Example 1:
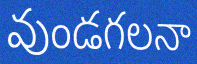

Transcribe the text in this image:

వుండగలనా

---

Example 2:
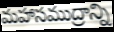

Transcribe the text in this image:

మహాసముద్రాన్ని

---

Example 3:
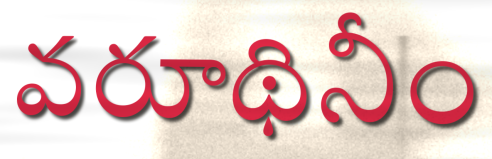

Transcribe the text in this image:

వరూథినీం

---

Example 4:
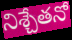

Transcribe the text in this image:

నిశ్చేతనో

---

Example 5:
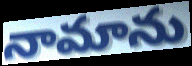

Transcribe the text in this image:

నామాను